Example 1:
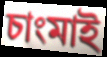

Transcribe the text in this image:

চাংমাই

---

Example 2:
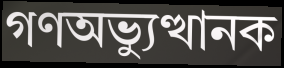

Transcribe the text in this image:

গণঅভ্যুত্থানক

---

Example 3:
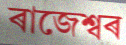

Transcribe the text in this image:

ৰাজেশ্বৰ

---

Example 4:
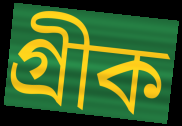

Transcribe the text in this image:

গ্ৰীক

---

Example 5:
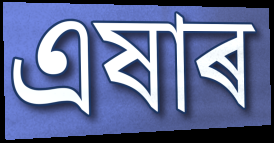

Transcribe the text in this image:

এষাৰ